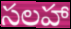
సలహా